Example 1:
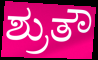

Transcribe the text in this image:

ಶ್ರುತೌ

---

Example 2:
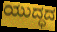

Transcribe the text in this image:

ಯುದ್ಧದ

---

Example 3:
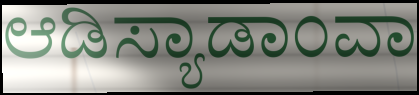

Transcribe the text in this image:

ಆಡಿಸ್ಯಾಡಾಂವಾ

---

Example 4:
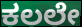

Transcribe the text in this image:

ಕಲಲೇ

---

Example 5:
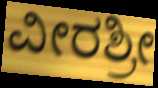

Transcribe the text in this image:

ವೀರಶ್ರೀ